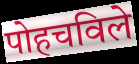
पोहचविले